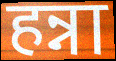
हन्ना